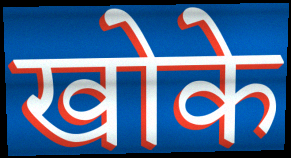
खोके